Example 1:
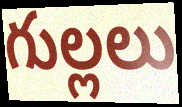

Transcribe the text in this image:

గుల్లలు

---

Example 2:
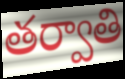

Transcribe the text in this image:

తర్వాతి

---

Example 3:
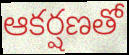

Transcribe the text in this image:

ఆకర్షణతో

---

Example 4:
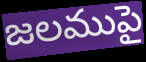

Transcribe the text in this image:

జలముపై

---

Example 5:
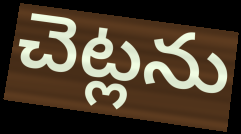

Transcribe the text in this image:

చెట్లను